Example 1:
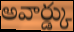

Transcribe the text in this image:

అవార్డ్కు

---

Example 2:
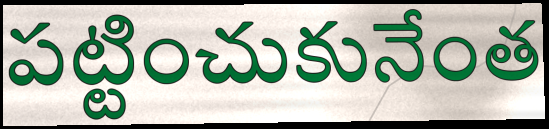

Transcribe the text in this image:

పట్టించుకునేంత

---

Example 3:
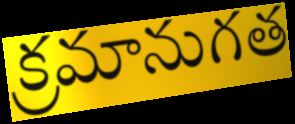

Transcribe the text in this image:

క్రమానుగత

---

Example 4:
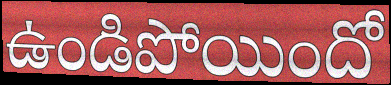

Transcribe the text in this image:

ఉండిపోయిందో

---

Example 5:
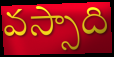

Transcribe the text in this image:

వస్సాది